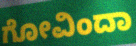
ಗೋವಿಂದಾ